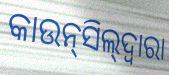
କାଉନ୍‌ସିଲ୍‌ଦ୍ବାରା